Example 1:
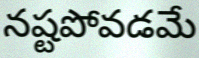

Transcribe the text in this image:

నష్టపోవడమే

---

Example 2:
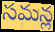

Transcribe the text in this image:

సమన్ల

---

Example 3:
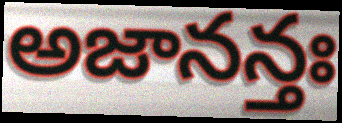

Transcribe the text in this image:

అజానన్తః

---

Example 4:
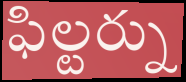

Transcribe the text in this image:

ఫిల్టర్ను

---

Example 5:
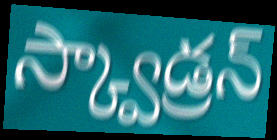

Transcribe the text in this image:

స్క్వాడ్రన్